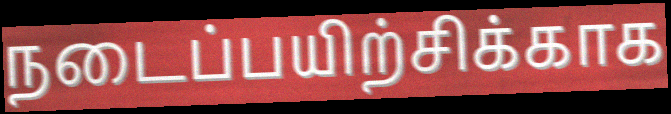
நடைப்பயிற்சிக்காக